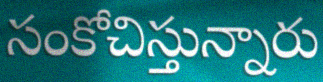
సంకోచిస్తున్నారు